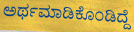
ಅರ್ಥಮಾಡಿಕೊಂಡಿದ್ದೆ